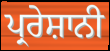
ਪ੍ਰਰੇਸ਼ਾਨੀ